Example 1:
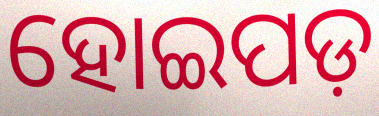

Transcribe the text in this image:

ହୋଇପଡ଼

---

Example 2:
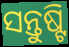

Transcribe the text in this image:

ସନ୍ତୁଷ୍ଟି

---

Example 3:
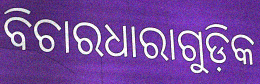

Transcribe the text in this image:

ବିଚାରଧାରାଗୁଡ଼ିକ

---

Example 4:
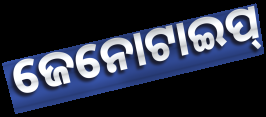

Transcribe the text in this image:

ଜେନୋଟାଇପ୍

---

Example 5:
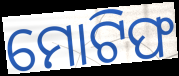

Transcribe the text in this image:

ମୋଟିଫ